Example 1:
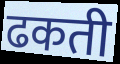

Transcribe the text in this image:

ढकती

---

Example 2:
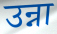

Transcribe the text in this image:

उन्ना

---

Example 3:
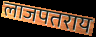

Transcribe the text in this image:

लाजपतराय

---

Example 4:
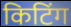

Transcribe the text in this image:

किटिंग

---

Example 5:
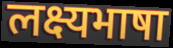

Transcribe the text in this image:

लक्ष्यभाषा